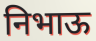
निभाऊ